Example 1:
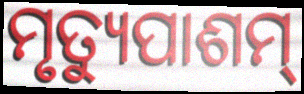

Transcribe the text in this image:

ମୃତ୍ୟୁପାଶମ୍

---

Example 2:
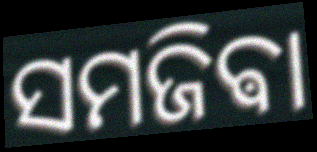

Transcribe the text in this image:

ସମଜିଵା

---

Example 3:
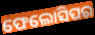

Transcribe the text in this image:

ଫେଲୋସିପର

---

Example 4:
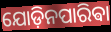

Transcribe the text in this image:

ଯୋଡ଼ିନପାରିଵା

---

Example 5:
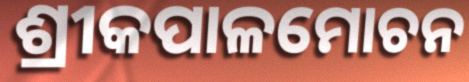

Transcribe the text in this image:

ଶ୍ରୀକପାଳମୋଚନ